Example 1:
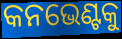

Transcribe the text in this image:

କନଭେଣ୍ଟକୁ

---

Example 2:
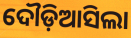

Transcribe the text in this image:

ଦୌଡ଼ିଆସିଲା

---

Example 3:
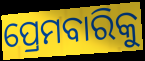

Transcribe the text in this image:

ପ୍ରେମବାରିକୁ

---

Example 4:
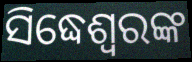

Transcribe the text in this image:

ସିଦ୍ଧେଶ୍ୱରଙ୍କ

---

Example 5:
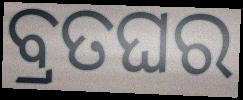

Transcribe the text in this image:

ବ୍ରତଘର